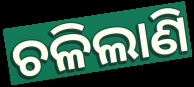
ଚଳିଲାଣି